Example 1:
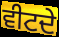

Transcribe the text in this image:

ਵੀਟਦੇ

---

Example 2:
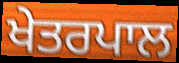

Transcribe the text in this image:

ਖੇਤਰਪਾਲ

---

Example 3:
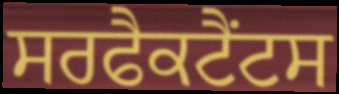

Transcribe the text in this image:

ਸਰਫੈਕਟੈਂਟਸ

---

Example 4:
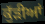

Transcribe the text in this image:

ਕੁੱੜੀਆਂ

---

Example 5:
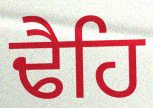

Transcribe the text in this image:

ਢੈਹਿ